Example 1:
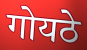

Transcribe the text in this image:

गोयठे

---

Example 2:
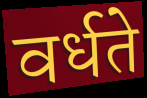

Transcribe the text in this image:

वर्धते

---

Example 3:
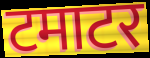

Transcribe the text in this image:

टमाटर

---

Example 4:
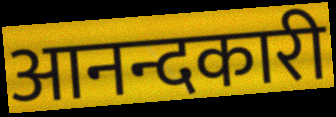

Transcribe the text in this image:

आनन्दकारी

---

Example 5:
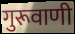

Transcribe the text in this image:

गुरूवाणी